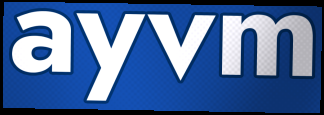
ayvm